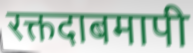
रक्तदाबमापी